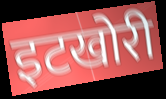
इटखोरी